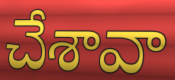
చేశావా